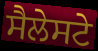
ਸੈਲੇਸਟੇ